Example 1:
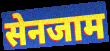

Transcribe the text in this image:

सेनजाम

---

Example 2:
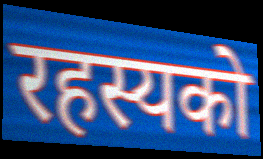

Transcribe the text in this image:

रहस्यको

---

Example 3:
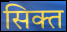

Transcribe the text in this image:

सिक्त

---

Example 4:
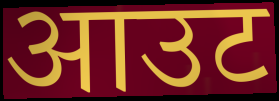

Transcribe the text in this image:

आउट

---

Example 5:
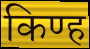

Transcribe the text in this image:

किण्ह